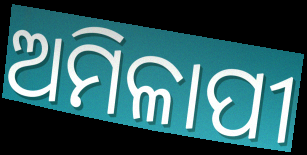
ଅମିଳାପୀ